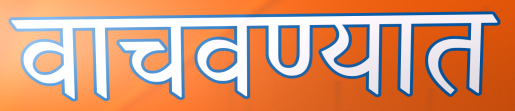
वाचवण्यात